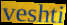
veshti